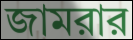
জামরার